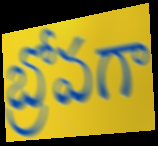
బ్రోవగా